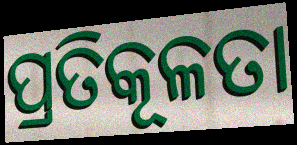
ପ୍ରତିକୂଳତା